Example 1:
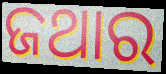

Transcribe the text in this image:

ଜଥାର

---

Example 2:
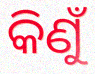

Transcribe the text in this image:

କିଣୁଁ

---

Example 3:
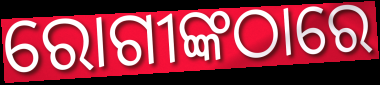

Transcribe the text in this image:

ରୋଗୀଙ୍କଠାରେ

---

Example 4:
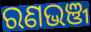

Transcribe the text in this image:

ରଣଭଞ୍ଜ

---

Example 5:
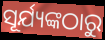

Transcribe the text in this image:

ସୂର୍ଯ୍ୟଙ୍କଠାରୁ